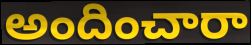
అందించారా